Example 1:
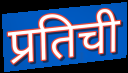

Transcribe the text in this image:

प्रतिची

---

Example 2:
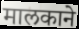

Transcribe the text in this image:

मालकाने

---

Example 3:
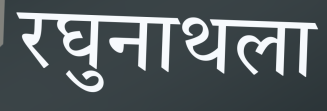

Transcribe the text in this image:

रघुनाथला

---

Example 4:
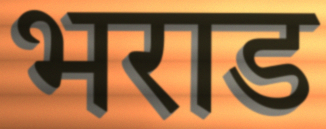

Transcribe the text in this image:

भराड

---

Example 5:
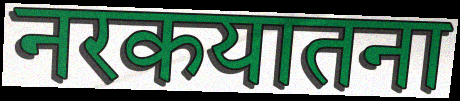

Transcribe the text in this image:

नरकयातना